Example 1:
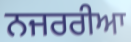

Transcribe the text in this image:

ਨਜਰਰੀਆ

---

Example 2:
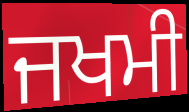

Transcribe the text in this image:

ਜਖਮੀ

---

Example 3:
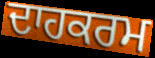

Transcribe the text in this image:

ਦਾਹਕਰਮ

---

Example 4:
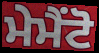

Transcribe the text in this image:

ਮੇਮੈਂਟੋ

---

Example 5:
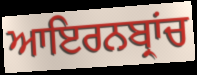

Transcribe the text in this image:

ਆਇਰਨਬ੍ਰਾਂਚ